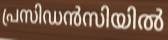
പ്രസിഡൻസിയിൽ